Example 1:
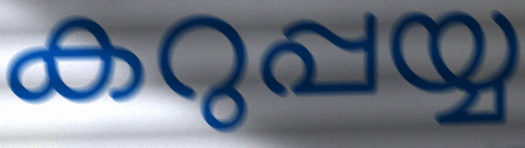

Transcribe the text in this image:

കറുപ്പയ്യ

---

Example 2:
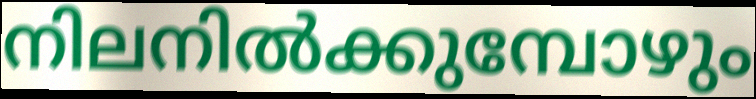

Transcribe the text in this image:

നിലനിൽക്കുമ്പോഴും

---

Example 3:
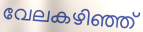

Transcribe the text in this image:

വേലകഴിഞ്ഞ്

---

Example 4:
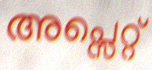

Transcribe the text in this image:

അപ്സെറ്റ്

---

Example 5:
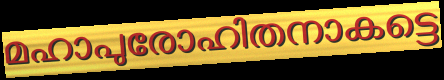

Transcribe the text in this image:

മഹാപുരോഹിതനാകട്ടെ